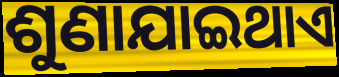
ଶୁଣାଯାଇଥାଏ